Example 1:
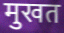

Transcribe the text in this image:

मुखत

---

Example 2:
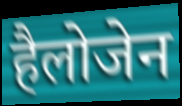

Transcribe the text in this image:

हैलोजेन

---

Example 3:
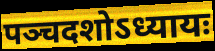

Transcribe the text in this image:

पञ्चदशोऽध्यायः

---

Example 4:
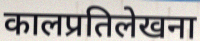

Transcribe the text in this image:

कालप्रतिलेखना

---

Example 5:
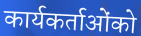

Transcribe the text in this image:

कार्यकर्ताओंको